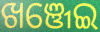
ଖଞ୍ଜେଇ